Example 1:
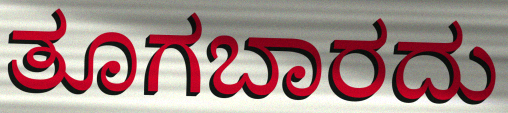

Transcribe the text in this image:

ತೂಗಬಾರದು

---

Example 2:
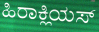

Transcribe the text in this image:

ಹಿರಾಕ್ಲಿಯಸ್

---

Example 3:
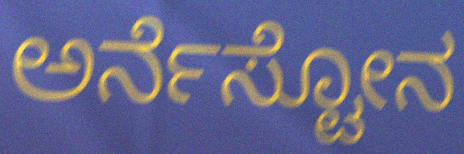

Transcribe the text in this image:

ಅರ್ನೆಸ್ಟೋನ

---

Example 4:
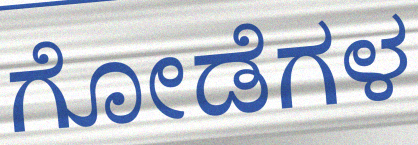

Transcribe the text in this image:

ಗೋಡೆಗಳ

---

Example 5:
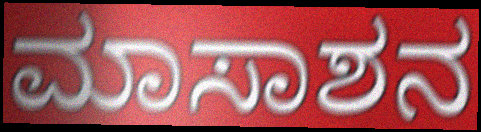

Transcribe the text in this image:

ಮಾಸಾಶನ